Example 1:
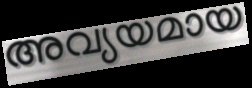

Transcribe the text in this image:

അവ്യയമായ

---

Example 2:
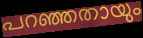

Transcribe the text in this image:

പറഞ്ഞതായും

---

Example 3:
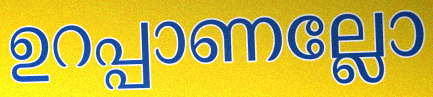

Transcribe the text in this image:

ഉറപ്പാണല്ലോ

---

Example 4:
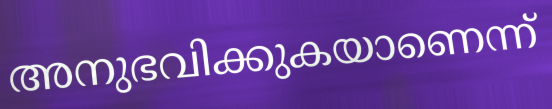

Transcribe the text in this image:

അനുഭവിക്കുകയാണെന്ന്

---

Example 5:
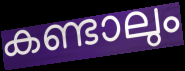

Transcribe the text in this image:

കണ്ടാലും